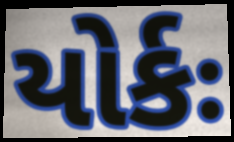
યોર્કઃ